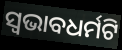
ସ୍ଵଭାବଧର୍ମଟି